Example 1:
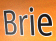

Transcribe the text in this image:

Brie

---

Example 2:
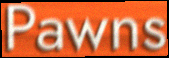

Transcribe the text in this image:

Pawns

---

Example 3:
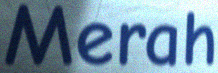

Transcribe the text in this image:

Merah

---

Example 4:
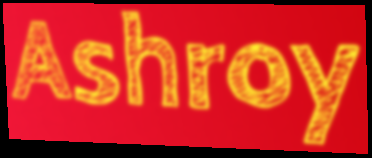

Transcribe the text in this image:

Ashroy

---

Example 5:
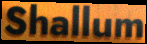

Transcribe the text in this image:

Shallum